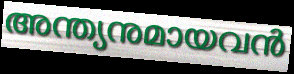
അന്ത്യനുമായവൻ